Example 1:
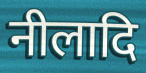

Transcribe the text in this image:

नीलादि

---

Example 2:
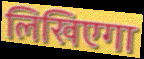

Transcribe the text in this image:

लिखिएगा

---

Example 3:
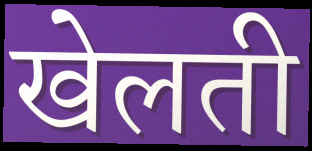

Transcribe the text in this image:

खेलती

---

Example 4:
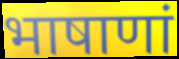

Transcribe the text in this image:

भाषाणां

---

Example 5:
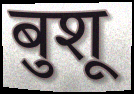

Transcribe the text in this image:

बुशू